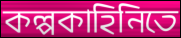
কল্পকাহিনিতে